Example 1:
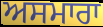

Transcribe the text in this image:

ਅਸਮਾਰਾ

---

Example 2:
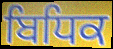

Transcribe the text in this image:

ਬਿਧਿਕ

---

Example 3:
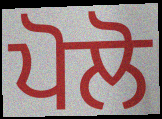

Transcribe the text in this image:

ਪੋਲੋ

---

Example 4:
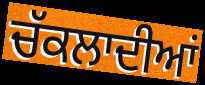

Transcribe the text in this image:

ਚੱਕਲਾਦੀਆਂ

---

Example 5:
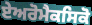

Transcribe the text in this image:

ਏਅਰੋਮੈਕਸਿਕੋ